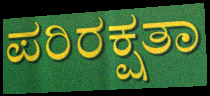
ಪರಿರಕ್ಷತಾ